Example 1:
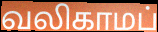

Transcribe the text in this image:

வலிகாமப்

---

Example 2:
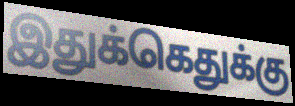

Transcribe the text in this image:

இதுக்கெதுக்கு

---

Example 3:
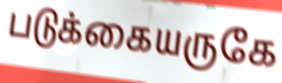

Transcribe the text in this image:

படுக்கையருகே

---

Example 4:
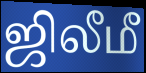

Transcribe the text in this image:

ஜிலீமீ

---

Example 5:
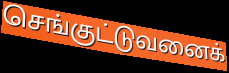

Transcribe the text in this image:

செங்குட்டுவனைக்